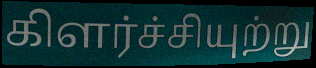
கிளர்ச்சியுற்று